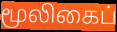
மூலிகைப்